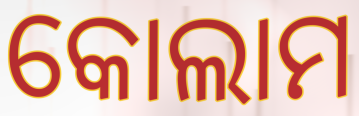
କୋଲାମ